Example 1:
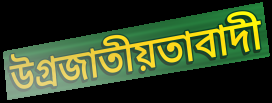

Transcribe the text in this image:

উগ্রজাতীয়তাবাদী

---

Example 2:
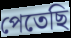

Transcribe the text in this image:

পেতেছি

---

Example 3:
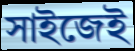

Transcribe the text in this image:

সাইজেই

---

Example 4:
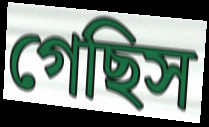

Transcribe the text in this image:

গেছিস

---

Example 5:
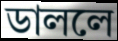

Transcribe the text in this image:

ডাললে